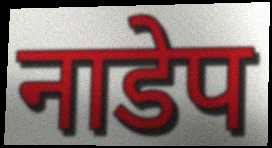
नाडेप